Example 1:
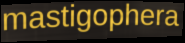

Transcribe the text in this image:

mastigophera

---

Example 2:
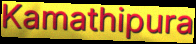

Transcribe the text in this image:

Kamathipura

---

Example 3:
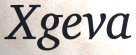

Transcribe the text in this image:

Xgeva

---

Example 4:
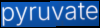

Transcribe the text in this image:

pyruvate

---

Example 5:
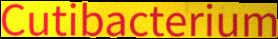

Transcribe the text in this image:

Cutibacterium